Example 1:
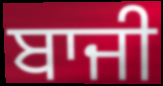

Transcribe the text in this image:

ਬਾਜੀ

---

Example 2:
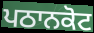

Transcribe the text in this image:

ਪਠਾਨਕੋਟ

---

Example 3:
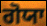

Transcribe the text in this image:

ਗੋਯਾ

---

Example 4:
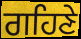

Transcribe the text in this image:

ਗਹਿਣੇ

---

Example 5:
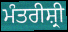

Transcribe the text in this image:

ਮੰਤਰੀਸ਼੍ਰੀ